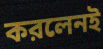
করলেনই